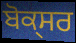
ਬੋਕ੍ਸਰ